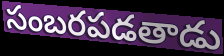
సంబరపడతాడు